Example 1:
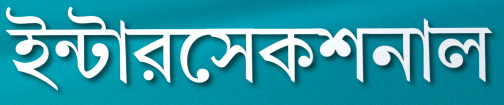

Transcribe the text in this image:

ইন্টারসেকশনাল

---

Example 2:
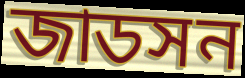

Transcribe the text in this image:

জাডসন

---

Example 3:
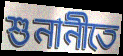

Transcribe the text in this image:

শুনানীতে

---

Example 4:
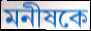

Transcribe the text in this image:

মনীষকে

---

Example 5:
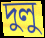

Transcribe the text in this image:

দুলু